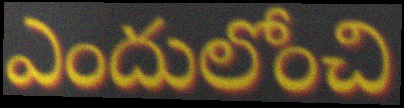
ఎందులోంచి